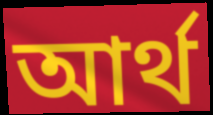
আর্থ